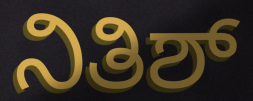
ನಿತಿಶ್